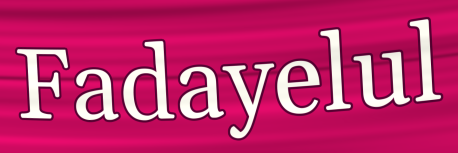
Fadayelul